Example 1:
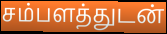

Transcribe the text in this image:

சம்பளத்துடன்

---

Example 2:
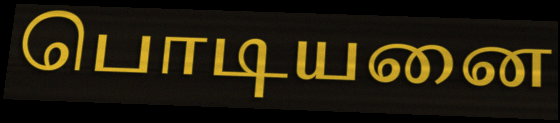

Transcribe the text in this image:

பொடியனை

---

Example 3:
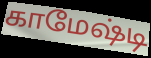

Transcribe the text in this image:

காமேஷ்டி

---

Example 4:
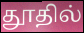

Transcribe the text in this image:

தூதில்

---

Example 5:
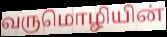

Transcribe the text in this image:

வருமொழியின்